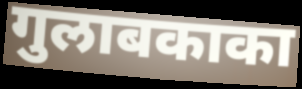
गुलाबकाका